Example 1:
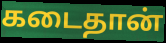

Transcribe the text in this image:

கடைதான்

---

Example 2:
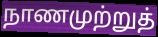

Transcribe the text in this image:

நாணமுற்றுத்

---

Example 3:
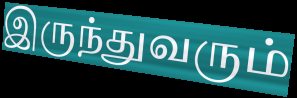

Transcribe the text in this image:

இருந்துவரும்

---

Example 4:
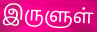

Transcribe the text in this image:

இருளுள்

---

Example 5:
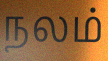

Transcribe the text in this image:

நலம்